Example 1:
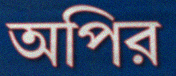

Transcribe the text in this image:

অপির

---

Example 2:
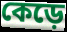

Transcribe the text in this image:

কেড়ে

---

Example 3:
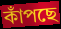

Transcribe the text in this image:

কাঁপছে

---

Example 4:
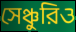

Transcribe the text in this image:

সেঞ্চুরিও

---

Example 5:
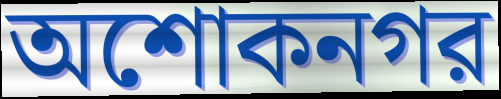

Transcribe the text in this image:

অশোকনগর